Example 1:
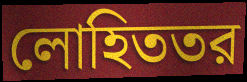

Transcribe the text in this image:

লোহিততর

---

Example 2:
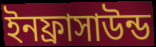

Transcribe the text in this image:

ইনফ্রাসাউন্ড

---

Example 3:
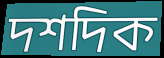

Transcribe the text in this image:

দশদিক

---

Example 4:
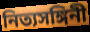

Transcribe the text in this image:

নিত্যসঙ্গিনী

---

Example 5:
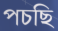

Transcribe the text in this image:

পচছি